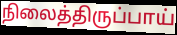
நிலைத்திருப்பாய்